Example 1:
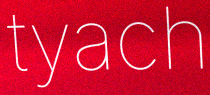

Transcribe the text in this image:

tyach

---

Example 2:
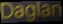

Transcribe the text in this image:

Daglan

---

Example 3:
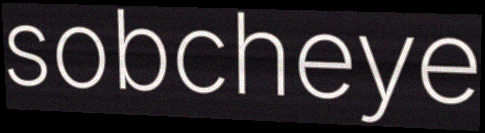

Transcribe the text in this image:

sobcheye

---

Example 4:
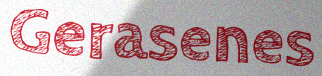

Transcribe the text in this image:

Gerasenes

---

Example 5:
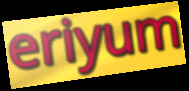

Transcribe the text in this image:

eriyum